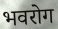
भवरोग